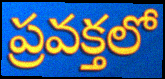
ప్రవక్తలో